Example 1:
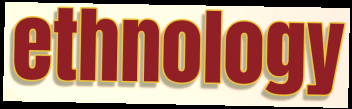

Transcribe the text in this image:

ethnology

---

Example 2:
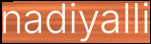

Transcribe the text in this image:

nadiyalli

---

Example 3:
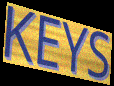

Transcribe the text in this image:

KEYS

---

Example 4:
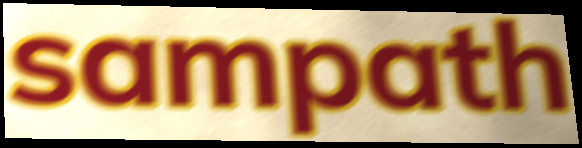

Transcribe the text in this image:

sampath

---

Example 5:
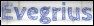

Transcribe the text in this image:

Evegrius